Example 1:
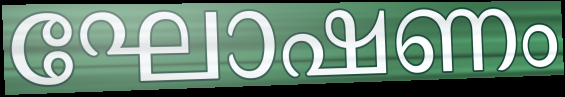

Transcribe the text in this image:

ഘോഷണം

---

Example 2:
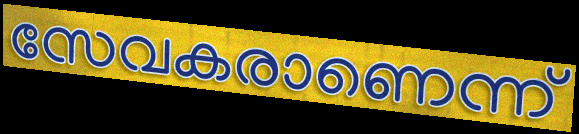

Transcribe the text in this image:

സേവകരാണെന്ന്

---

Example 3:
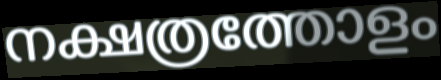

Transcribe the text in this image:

നക്ഷത്രത്തോളം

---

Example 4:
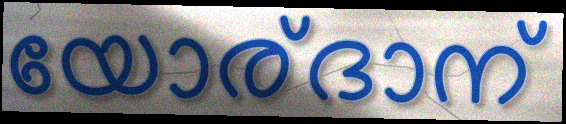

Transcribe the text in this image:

യോര്ദാന്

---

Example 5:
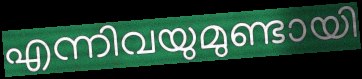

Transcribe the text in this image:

എന്നിവയുമുണ്ടായി